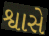
શ્વાસે